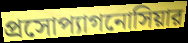
প্রসোপ্যাগনোসিয়ার